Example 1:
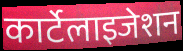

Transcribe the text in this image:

कार्टेलाइजेशन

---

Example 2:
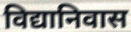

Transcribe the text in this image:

विद्यानिवास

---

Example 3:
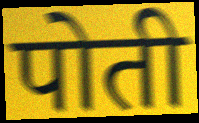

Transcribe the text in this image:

पोती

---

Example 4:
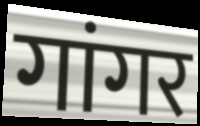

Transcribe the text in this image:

गांगर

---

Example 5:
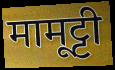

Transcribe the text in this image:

मामूट्टी